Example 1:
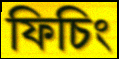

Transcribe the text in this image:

ফিচিং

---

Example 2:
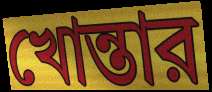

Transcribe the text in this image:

খোন্তার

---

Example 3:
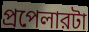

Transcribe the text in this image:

প্রপেলারটা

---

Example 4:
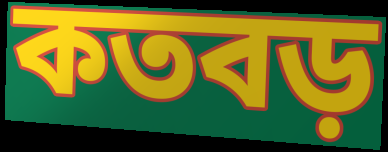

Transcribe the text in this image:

কতবড়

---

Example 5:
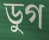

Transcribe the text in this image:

ডুগ